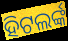
ହିଟଲର୍ଙ୍କ